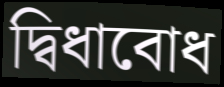
দ্বিধাবোধ